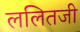
ललितजी